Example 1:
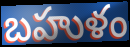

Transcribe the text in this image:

బహుళం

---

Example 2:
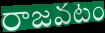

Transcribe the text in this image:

రాజవటం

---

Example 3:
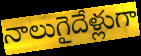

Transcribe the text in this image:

నాలుగైదేళ్లుగా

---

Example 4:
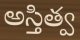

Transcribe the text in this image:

అస్తిత్వ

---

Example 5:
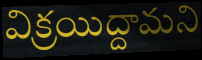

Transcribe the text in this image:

విక్రయిద్దామని